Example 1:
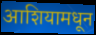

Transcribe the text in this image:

आशियामधून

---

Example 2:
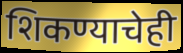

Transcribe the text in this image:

शिकण्याचेही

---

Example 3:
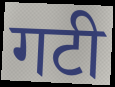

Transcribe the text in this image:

गटी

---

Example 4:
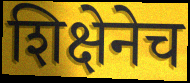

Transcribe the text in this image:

शिक्षेनेच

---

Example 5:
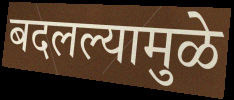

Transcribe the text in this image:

बदलल्यामुळे